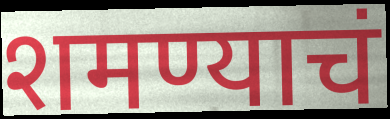
शमण्याचं